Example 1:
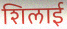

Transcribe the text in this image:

शिलाई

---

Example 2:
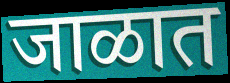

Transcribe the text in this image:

जाळात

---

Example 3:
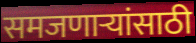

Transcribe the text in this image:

समजणाऱ्यांसाठी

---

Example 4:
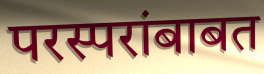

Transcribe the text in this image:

परस्परांबाबत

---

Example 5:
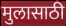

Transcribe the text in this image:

मुलासाठी